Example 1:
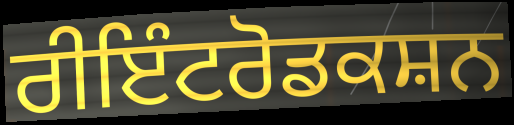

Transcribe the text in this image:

ਰੀਇੰਟਰੋਡਕਸ਼ਨ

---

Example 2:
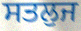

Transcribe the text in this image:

ਸਤਲੁਜ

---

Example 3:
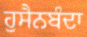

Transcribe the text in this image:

ਹੁਸੈਨਬੰਦਾ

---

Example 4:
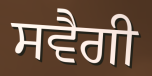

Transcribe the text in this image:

ਸਵੈਗੀ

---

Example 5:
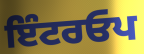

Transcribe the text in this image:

ਇੰਟਰਓਪ